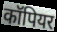
कॉपियर